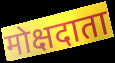
मोक्षदाता